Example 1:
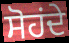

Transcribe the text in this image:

ਸੋਹਂਦੇ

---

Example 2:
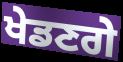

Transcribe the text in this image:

ਖੇਡਣਗੇ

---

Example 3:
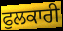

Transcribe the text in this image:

ਫੁਲਕਾਰੀ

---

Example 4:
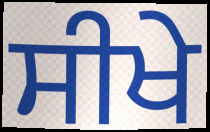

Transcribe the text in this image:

ਸੀਖੇ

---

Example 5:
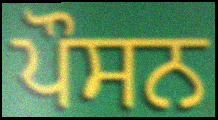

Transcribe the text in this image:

ਪੌਸਨ